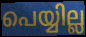
പെയ്യില്ല